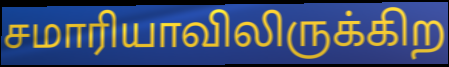
சமாரியாவிலிருக்கிற